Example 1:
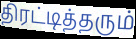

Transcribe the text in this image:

திரட்டித்தரும்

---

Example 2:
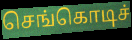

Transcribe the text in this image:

செங்கொடிச்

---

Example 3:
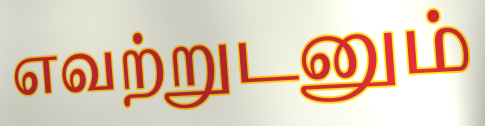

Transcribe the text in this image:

எவற்றுடனும்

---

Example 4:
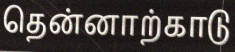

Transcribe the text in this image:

தென்னாற்காடு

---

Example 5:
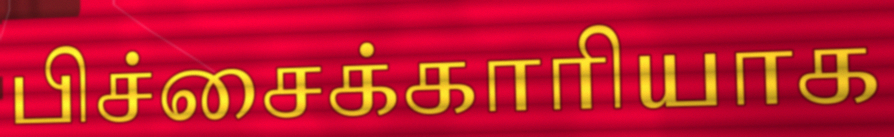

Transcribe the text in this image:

பிச்சைக்காரியாக